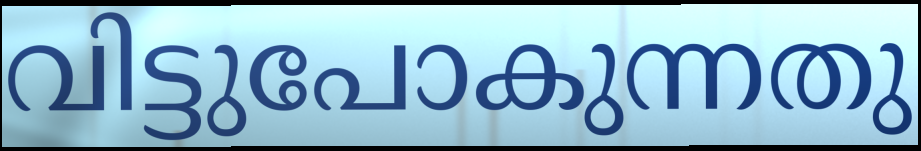
വിട്ടുപോകുന്നതു